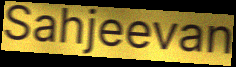
Sahjeevan